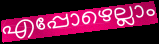
എപ്പോഴെല്ലാം